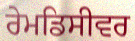
ਰੇਮਡਿਸੀਵਰ